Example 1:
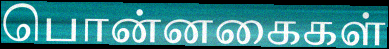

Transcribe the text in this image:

பொன்னகைகள்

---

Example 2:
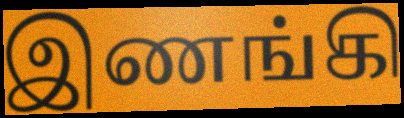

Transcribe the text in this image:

இணங்கி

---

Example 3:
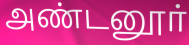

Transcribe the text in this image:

அண்டனூர்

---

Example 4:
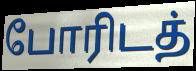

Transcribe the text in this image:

போரிடத்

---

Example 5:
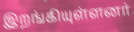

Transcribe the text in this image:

இறங்கியுள்ளனர்